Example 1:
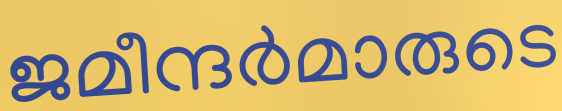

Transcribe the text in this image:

ജമീന്ദർമാരുടെ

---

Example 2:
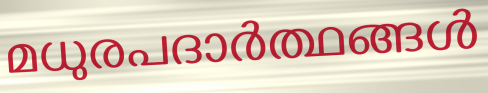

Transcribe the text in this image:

മധുരപദാർത്ഥങ്ങൾ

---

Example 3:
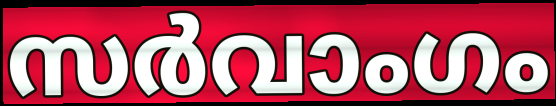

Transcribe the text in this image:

സർവാംഗം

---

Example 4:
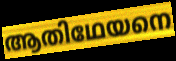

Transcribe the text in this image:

ആതിഥേയനെ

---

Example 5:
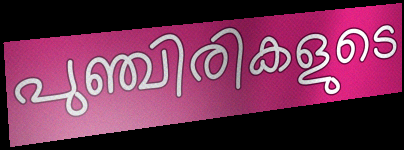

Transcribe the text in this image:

പുഞ്ചിരികളുടെ